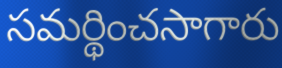
సమర్థించసాగారు